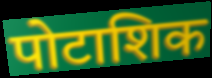
पोटाशिक